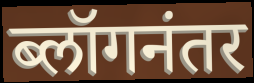
ब्लॉगनंतर